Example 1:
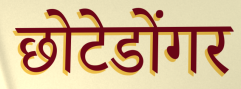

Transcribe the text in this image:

छोटेडोंगर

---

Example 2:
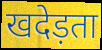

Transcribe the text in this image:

खदेड़ता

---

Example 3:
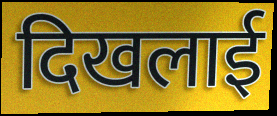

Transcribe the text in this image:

दिखलाई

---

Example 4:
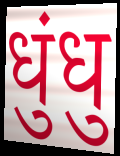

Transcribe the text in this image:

धुंधु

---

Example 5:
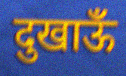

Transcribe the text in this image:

दुखाऊँ